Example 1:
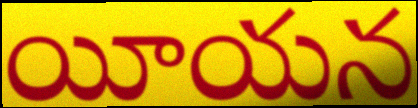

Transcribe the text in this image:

యీయన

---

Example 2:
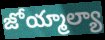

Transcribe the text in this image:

జోయ్మాల్యా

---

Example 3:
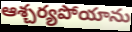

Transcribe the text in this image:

ఆశ్చర్యపోయాను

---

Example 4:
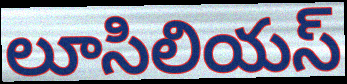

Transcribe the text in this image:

లూసిలియస్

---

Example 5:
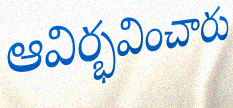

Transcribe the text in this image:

ఆవిర్భవించారు